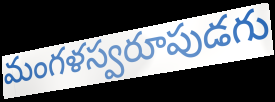
మంగళస్వరూపుడగు